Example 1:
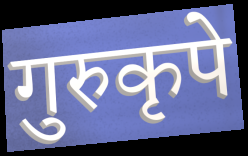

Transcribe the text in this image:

गुरुकृपे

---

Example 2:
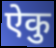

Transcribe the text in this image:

ऐकु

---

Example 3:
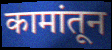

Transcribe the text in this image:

कामांतून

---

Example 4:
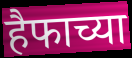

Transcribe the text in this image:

हैफाच्या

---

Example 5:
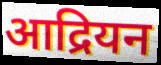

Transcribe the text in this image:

आद्रियन